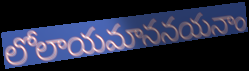
లోలాయమాననయనాం